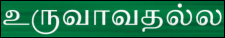
உருவாவதல்ல